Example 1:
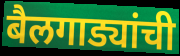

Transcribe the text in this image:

बैलगाड्यांची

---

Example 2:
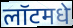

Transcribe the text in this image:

लॉटमधे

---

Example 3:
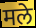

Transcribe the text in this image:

मले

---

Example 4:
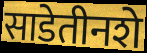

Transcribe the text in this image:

साडेतीनशे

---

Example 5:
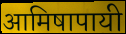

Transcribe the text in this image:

आमिषापायी